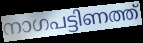
നാഗപട്ടിണത്ത്